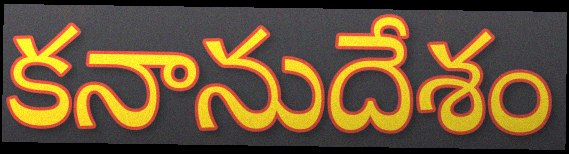
కనానుదేశం